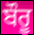
ਬੌਰੂ